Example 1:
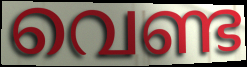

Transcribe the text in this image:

വെണ്ട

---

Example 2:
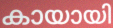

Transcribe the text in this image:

കായായി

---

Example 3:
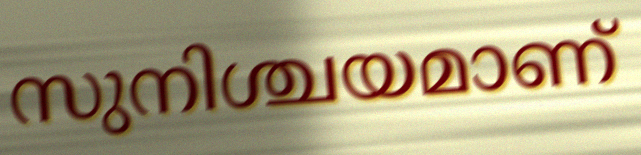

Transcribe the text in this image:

സുനിശ്ചയമാണ്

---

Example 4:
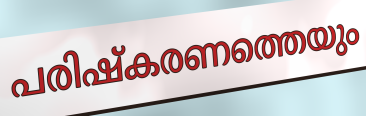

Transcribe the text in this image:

പരിഷ്കരണത്തെയും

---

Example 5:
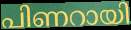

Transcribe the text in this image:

പിണറായി